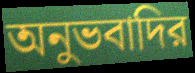
অনুভবাদির